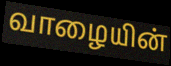
வாழையின்